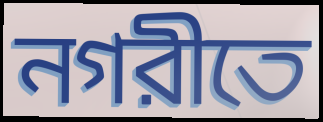
নগরীতে